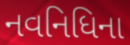
નવનિધિના